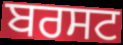
ਬਰਸਟ